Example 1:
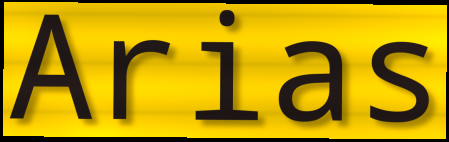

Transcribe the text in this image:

Arias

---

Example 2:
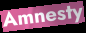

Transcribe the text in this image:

Amnesty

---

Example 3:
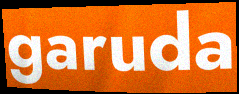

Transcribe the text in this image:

garuda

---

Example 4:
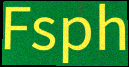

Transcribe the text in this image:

Fsph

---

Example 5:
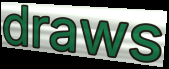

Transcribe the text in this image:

draws